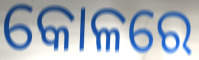
କୋଳରେ